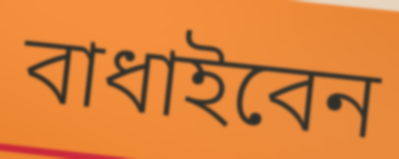
বাধাইবেন